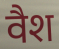
वैश